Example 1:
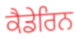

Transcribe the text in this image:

ਕੈਡੇਰਿਨ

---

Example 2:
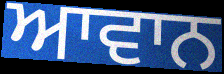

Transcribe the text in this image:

ਆਵਾਨ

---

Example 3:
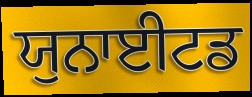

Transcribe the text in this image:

ਯੁਨਾਈਟਡ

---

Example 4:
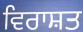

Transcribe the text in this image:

ਵਿਰਾਸ਼ਤ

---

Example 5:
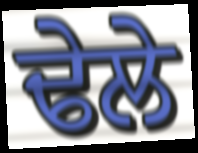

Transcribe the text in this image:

ਢੇਲੇ